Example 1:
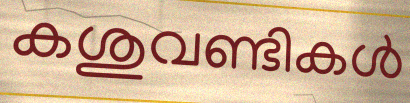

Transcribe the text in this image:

കശുവണ്ടികൾ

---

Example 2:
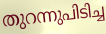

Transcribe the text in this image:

തുറന്നുപിടിച്ച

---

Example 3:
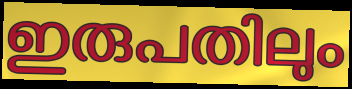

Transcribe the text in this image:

ഇരുപതിലും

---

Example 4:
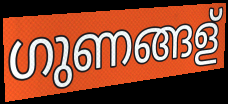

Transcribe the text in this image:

ഗുണങ്ങള്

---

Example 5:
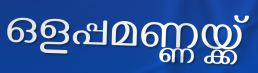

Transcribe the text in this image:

ഒളപ്പമണ്ണയ്ക്ക്